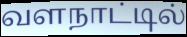
வளநாட்டில்